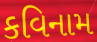
કવિનામ